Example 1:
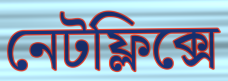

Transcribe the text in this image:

নেটফ্লিক্সে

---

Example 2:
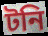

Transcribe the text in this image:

টনি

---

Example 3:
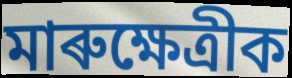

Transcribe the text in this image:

মাৰুক্ষেত্ৰীক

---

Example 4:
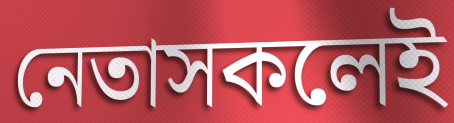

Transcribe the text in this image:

নেতাসকলেই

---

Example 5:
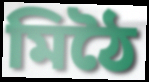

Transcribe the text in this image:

মিঠৈ